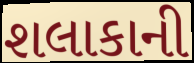
શલાકાની